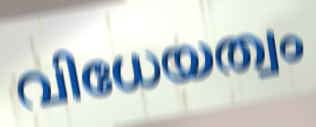
വിധേയത്വം